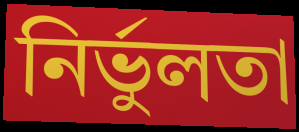
নির্ভুলতা